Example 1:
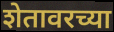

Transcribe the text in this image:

शेतावरच्या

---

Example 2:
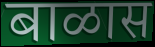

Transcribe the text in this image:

बाळास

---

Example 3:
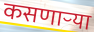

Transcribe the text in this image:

कसणाऱ्या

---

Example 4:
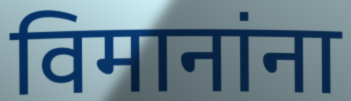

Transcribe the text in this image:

विमानांना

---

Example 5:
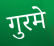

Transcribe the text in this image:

गुरमे